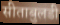
सीताबुलडी